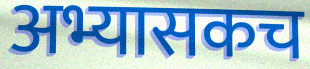
अभ्यासकच